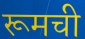
रूमची